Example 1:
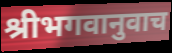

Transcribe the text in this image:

श्रीभगवानुवाच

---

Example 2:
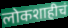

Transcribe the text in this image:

लोकशाहीचं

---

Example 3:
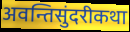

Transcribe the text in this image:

अवन्तिसुंदरीकथा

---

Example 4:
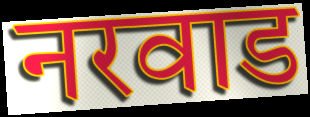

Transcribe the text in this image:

नरवाड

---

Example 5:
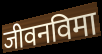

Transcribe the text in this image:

जीवनविमा